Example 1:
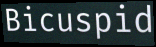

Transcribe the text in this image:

Bicuspid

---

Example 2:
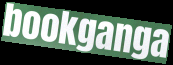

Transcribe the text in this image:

bookganga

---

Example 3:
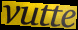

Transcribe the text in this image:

vutte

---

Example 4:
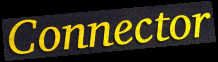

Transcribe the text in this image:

Connector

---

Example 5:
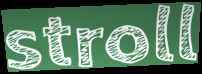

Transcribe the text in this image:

stroll